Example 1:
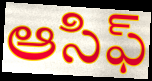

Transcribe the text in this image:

ఆసిఫ్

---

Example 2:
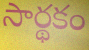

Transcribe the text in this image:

సార్థకం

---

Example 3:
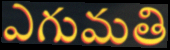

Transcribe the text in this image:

ఎగుమతి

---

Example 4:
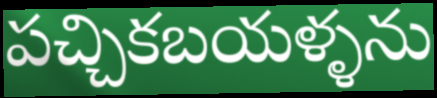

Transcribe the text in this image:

పచ్చికబయళ్ళను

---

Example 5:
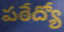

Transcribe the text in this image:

పఠేద్యో